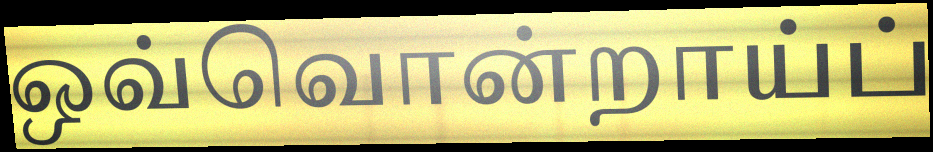
ஒவ்வொன்றாய்ப்